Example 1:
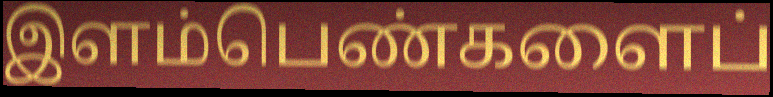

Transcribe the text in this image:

இளம்பெண்களைப்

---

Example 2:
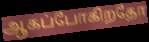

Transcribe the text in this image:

ஆகப்போகிறதோ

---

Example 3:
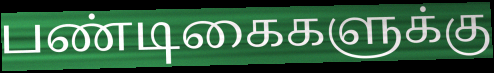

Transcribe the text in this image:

பண்டிகைகளுக்கு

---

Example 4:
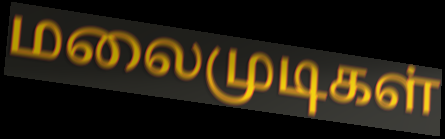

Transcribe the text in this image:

மலைமுடிகள்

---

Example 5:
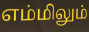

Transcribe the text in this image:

எம்மிலும்